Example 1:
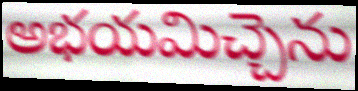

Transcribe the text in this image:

అభయమిచ్చెను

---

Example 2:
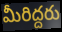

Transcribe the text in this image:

మీరిద్దరు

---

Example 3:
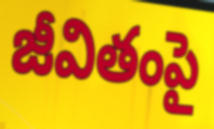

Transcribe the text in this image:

జీవితంపై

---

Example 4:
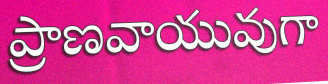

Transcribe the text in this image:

ప్రాణవాయువుగా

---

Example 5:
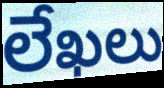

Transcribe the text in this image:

లేఖలు